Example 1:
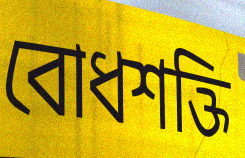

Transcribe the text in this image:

বোধশক্তি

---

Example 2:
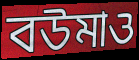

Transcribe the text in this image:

বউমাও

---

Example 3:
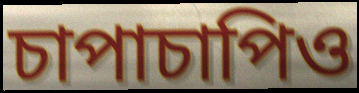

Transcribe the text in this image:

চাপাচাপিও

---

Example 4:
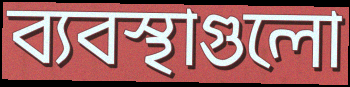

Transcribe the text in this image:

ব্যবস্থাগুলো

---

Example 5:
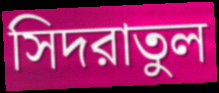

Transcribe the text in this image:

সিদরাতুল